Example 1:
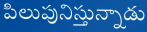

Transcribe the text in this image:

పిలుపునిస్తున్నాడు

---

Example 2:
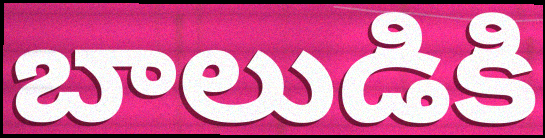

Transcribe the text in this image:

బాలుడికి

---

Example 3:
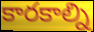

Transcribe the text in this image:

కారకాల్ని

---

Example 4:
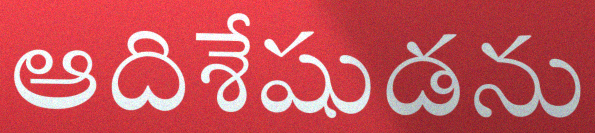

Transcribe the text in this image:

ఆదిశేషుడను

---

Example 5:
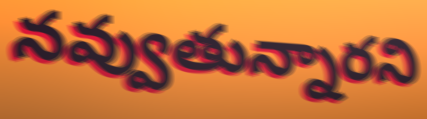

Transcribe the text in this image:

నవ్వుతున్నారని